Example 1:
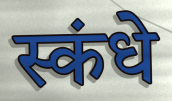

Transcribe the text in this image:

स्कंधे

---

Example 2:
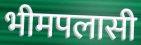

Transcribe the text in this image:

भीमपलासी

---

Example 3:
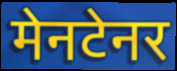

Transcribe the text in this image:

मेनटेनर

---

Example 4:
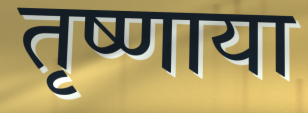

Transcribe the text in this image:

तृष्णाया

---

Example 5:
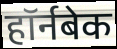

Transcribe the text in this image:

हॉर्नबेक